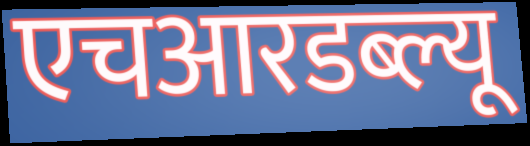
एचआरडब्ल्यू